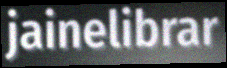
jainelibrar